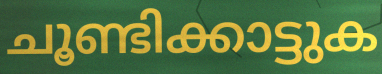
ചൂണ്ടിക്കാട്ടുക